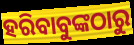
ହରିବାବୁଙ୍କଠାରୁ